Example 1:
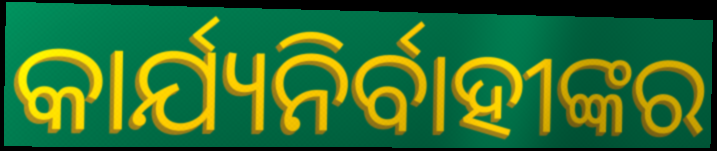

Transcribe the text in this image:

କାର୍ଯ୍ୟନିର୍ବାହୀଙ୍କର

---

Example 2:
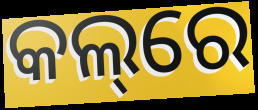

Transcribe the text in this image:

କଲ୍‌ରେ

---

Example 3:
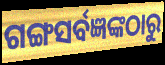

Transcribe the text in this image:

ଗଙ୍ଗସର୍ବଜ୍ଞଙ୍କଠାରୁ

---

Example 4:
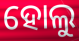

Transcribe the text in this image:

ହୋଲୁ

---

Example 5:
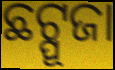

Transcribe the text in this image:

ଛଟ୍ପୂଜା